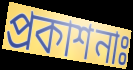
প্রকাশনাঃ